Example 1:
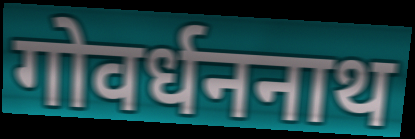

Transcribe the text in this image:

गोवर्धननाथ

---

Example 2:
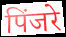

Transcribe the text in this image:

पिंजरे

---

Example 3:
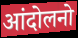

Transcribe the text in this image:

आंदोलनो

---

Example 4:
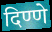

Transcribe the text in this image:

दिण्णे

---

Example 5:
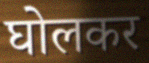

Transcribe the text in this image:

घोलकर